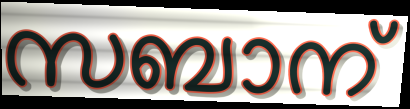
സബാന്